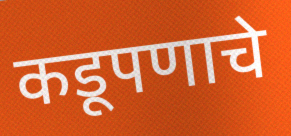
कडूपणाचे